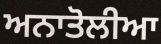
ਅਨਾਤੋਲੀਆ